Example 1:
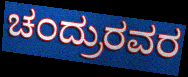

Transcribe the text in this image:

ಚಂದ್ರುರವರ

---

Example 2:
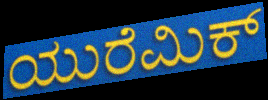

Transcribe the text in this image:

ಯುರೆಮಿಕ್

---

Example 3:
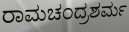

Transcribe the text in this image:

ರಾಮಚಂದ್ರಶರ್ಮ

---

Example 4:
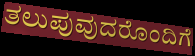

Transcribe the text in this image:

ತಲುಪುವುದರೊಂದಿಗೆ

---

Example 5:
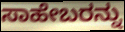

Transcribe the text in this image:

ಸಾಹೇಬರನ್ನು